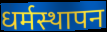
धर्मस्थापन